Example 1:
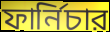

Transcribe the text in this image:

ফার্নিচার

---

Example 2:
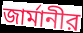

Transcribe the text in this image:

জার্মানীর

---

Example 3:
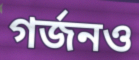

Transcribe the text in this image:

গর্জনও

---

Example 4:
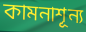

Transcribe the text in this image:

কামনাশূন্য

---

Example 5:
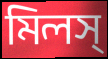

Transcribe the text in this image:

মিলস্